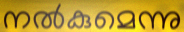
നൽകുമെന്നു